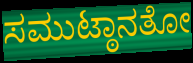
ಸಮುಟ್ಠಾನತೋ